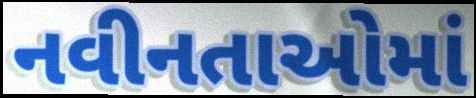
નવીનતાઓમાં